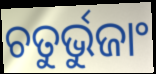
ଚତୁର୍ଭୁଜାଂ